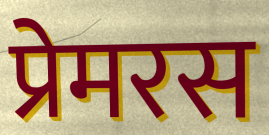
प्रेमरस